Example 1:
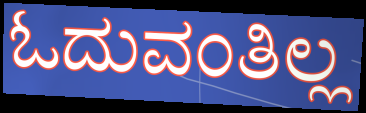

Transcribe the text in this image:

ಓದುವಂತಿಲ್ಲ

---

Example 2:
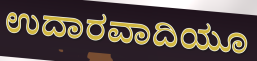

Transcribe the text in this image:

ಉದಾರವಾದಿಯೂ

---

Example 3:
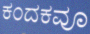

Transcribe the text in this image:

ಕಂದಕವೂ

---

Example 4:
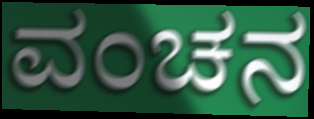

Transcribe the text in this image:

ವಂಚನ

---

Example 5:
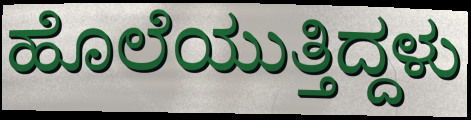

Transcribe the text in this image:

ಹೊಲೆಯುತ್ತಿದ್ದಳು